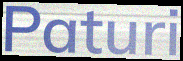
Paturi